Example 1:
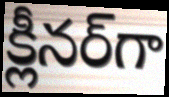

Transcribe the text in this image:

క్లీనర్‌గా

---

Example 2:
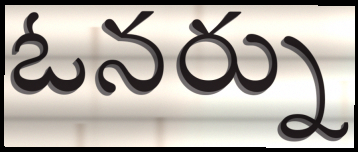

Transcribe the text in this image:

ఓనర్ను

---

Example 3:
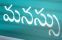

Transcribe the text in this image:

మనస్సు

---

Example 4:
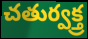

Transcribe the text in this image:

చతుర్వక్త్ర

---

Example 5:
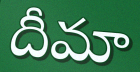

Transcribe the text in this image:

దీమా